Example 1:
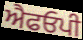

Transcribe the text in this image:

ਐਫਓਪੀ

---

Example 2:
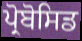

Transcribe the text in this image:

ਪ੍ਰੋਬੋਸਿਡ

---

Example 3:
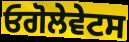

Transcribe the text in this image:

ਓਗੋਲੇਵੇਟਸ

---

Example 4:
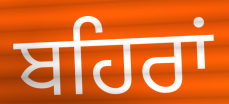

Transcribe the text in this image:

ਬਹਿਰਾਂ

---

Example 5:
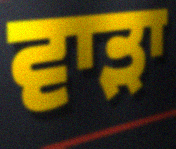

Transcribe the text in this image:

ਵਾੜਾ